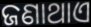
ଜଣାଥାଏ